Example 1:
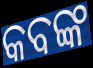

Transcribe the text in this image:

କବଙ୍କ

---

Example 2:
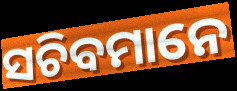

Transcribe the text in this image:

ସଚିବମାନେ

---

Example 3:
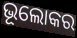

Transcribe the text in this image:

ଭୂଲୋକର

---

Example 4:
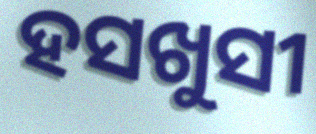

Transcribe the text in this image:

ହସଖୁସୀ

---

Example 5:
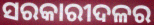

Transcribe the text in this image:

ସରକାରୀଦଳର